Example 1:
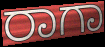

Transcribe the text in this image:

ರಾಗಾ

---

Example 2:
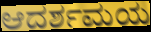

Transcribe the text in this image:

ಆದರ್ಶಮಯ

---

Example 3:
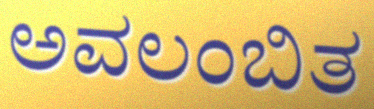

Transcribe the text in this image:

ಅವಲಂಬಿತ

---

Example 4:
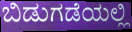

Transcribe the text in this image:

ಬಿಡುಗಡೆಯಲ್ಲಿ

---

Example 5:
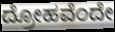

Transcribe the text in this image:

ದ್ರೋಹವೆಂದೇ